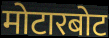
मोटारबोट